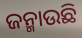
ଜନ୍ମାଉଛି